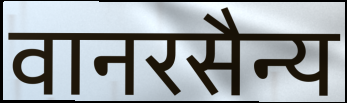
वानरसैन्य